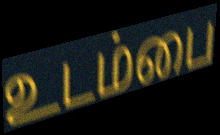
உடம்பை